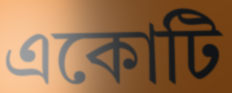
একোটি